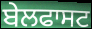
ਬੇਲਫਾਸਟ